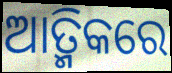
ଆତ୍ମିକରେ